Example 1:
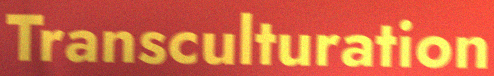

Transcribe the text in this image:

Transculturation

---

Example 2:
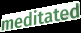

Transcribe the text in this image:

meditated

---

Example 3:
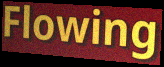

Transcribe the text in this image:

Flowing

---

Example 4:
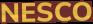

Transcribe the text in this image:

NESCO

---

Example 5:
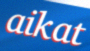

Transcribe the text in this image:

aikat